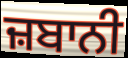
ਜ਼ਬਾਨੀ